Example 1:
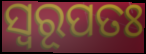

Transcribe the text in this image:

ସ୍ଵରୂପତଃ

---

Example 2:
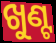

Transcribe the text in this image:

ଖୁଣ୍ଟ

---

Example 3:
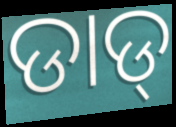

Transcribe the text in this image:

ଡାଡ୍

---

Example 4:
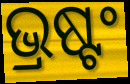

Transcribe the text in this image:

ଭ୍ରଷ୍ଟଂ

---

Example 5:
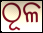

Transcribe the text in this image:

ଠୂଳ